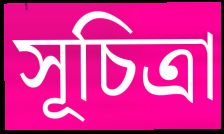
সূচিত্রা